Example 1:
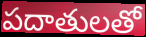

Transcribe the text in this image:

పదాతులతో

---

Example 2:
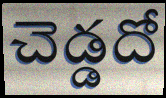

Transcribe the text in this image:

చెడ్డదో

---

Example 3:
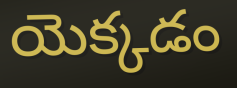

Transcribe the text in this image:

యెక్కడం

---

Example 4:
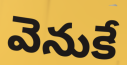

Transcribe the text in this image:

వెనుకే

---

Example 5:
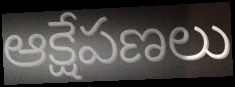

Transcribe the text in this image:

ఆక్షేపణలు